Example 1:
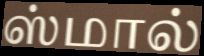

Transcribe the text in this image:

ஸ்மால்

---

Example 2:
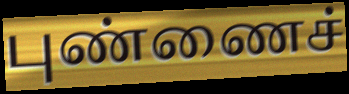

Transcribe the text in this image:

புண்ணைச்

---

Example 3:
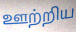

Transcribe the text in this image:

ஊற்றிய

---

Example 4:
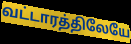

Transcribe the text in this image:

வட்டாரத்திலேயே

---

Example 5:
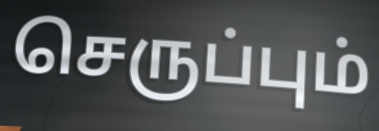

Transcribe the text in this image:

செருப்பும்